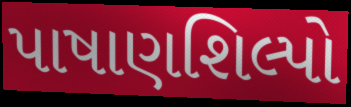
પાષાણશિલ્પો